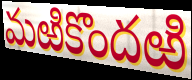
మఱికొందఱి